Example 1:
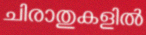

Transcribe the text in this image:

ചിരാതുകളിൽ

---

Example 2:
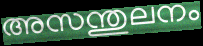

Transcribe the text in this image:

അസന്തുലനം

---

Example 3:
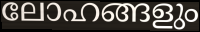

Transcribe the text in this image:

ലോഹങ്ങളും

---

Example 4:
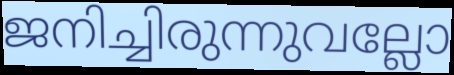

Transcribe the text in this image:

ജനിച്ചിരുന്നുവല്ലോ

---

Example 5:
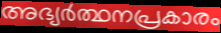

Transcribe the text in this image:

അഭ്യർത്ഥനപ്രകാരം